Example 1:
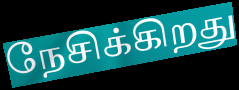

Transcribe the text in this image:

நேசிக்கிறது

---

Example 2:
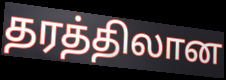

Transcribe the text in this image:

தரத்திலான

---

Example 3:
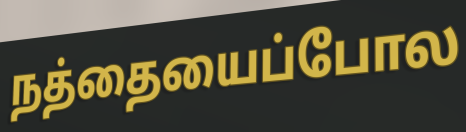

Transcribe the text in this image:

நத்தையைப்போல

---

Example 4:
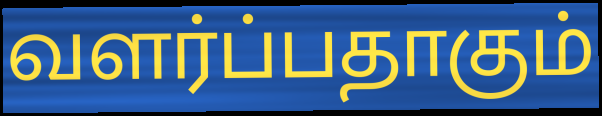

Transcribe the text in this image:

வளர்ப்பதாகும்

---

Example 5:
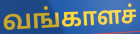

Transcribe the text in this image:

வங்காளச்